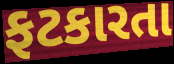
ફટકારતા